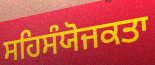
ਸਹਿਸੰਯੋਜਕਤਾ